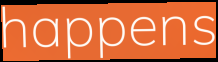
happens